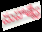
మహాత్మ్యే